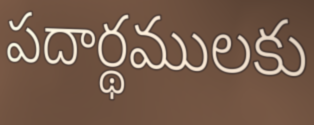
పదార్థములకు